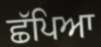
ਛੱਪਿਆ